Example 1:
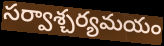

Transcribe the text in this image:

సర్వాశ్చర్యమయం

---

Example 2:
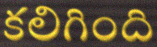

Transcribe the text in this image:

కలిగింది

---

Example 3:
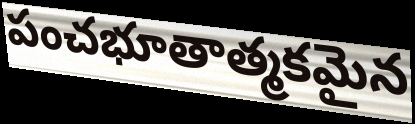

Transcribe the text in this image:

పంచభూతాత్మకమైన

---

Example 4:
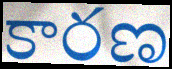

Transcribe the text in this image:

కారణ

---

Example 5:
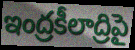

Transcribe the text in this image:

ఇంద్రకీలాద్రిపై